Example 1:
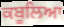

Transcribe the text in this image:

ਕਬੂਲਿਆ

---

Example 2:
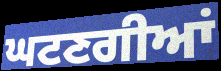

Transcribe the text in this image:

ਘਟਣਗੀਆਂ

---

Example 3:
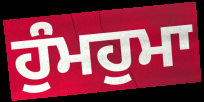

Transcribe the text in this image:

ਹੁੰਮਹੁਮਾ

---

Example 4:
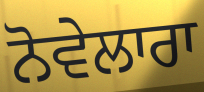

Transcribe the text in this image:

ਨੋਵੇਲਾਰਾ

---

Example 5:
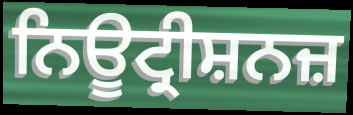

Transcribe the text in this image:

ਨਿਊਟ੍ਰੀਸ਼ਨਜ਼